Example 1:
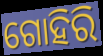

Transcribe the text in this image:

ଗୋହିରି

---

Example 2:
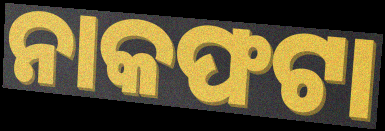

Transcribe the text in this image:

ନାକଫଟା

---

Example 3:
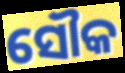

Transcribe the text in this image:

ସୌକ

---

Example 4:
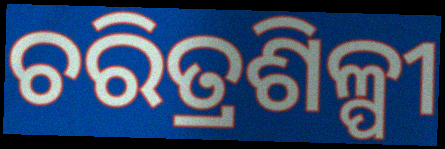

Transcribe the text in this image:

ଚରିତ୍ରଶିଳ୍ପୀ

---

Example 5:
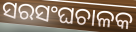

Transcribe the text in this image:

ସରସଂଘଚାଳକ